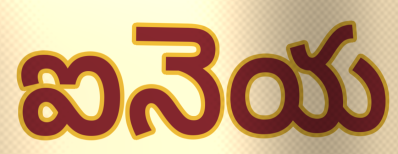
ఐనెయ